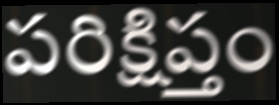
పరిక్షిప్తం